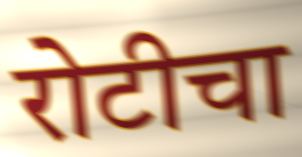
रोटीचा